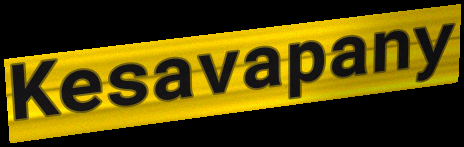
Kesavapany